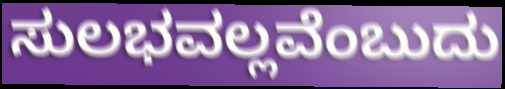
ಸುಲಭವಲ್ಲವೆಂಬುದು